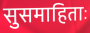
सुसमाहिताः